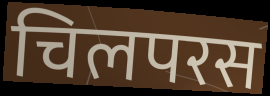
चिलपरस